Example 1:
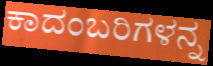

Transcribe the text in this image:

ಕಾದಂಬರಿಗಳನ್ನ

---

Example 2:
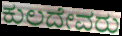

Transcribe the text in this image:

ಕುಲದೇವರು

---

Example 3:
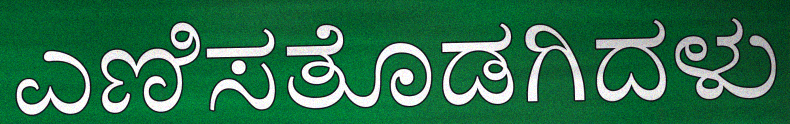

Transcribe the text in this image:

ಎಣಿಸತೊಡಗಿದಳು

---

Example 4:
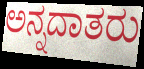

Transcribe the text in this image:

ಅನ್ನದಾತರು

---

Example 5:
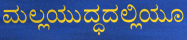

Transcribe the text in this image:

ಮಲ್ಲಯುದ್ಧದಲ್ಲಿಯೂ